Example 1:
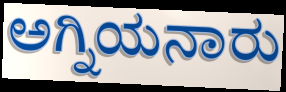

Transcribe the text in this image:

ಅಗ್ನಿಯನಾರು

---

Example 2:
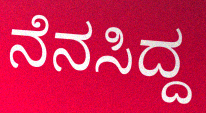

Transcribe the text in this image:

ನೆನಸಿದ್ದ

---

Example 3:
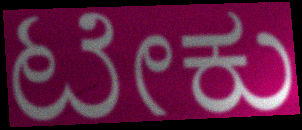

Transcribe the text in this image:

ಟೇಕು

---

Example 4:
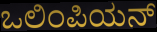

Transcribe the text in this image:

ಒಲಿಂಪಿಯನ್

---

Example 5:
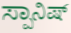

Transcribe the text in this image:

ಸ್ಪಾನಿಷ್